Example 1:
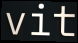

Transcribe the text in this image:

vit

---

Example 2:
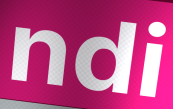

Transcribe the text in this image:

ndi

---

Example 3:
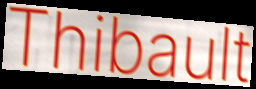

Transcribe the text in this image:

Thibault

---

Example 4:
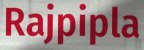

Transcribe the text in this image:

Rajpipla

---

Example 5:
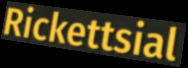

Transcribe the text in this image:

Rickettsial